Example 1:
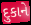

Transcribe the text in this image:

દુકાને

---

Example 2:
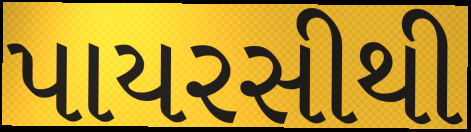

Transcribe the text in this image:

પાયરસીથી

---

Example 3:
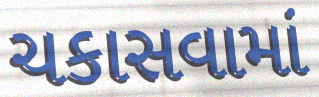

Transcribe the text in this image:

ચકાસવામાં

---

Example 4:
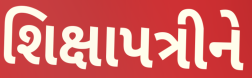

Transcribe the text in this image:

શિક્ષાપત્રીને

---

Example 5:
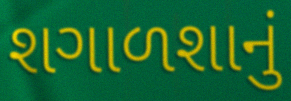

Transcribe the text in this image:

શગાળશાનું